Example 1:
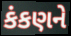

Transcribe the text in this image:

કંકણને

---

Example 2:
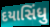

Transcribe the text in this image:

દયાસિંધુ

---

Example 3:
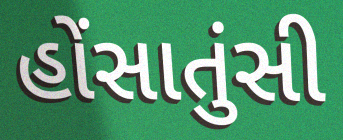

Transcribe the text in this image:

હોંસાતુંસી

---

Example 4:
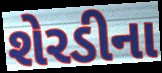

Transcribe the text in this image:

શેરડીના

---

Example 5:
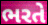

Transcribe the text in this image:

ભરતે